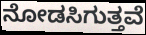
ನೋಡಸಿಗುತ್ತವೆ